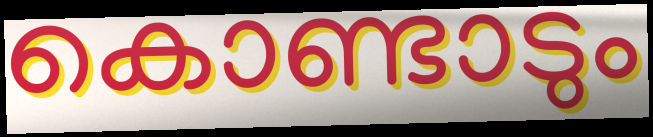
കൊണ്ടാടും